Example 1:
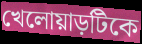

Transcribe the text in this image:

খেলোয়াড়টিকে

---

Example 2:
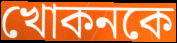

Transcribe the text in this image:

খোকনকে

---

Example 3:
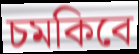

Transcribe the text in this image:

চমকিবে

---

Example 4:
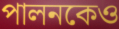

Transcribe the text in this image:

পালনকেও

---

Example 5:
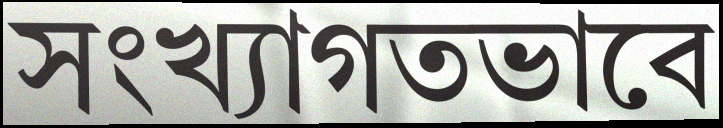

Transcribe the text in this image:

সংখ্যাগতভাবে